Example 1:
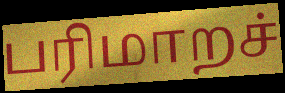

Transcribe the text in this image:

பரிமாறச்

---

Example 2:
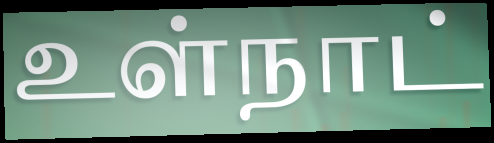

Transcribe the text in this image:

உள்நாட்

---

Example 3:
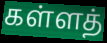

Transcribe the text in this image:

கள்ளத்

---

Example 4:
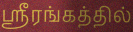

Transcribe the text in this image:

ஸ்ரீரங்கத்தில்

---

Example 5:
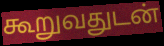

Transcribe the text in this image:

கூறுவதுடன்